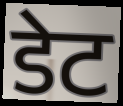
डेट